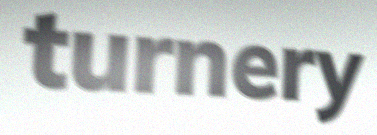
turnery